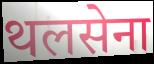
थलसेना